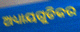
ଅଧ୍ୟାୟଗୁଡିକର